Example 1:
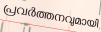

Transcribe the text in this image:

പ്രവർത്തനവുമായി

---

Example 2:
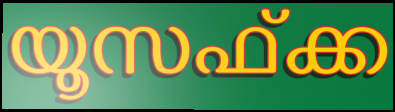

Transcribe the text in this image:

യൂസഫ്ക്ക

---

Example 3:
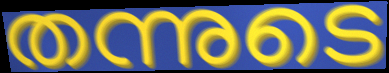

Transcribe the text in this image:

തന്നുടെ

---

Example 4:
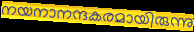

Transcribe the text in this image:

നയനാനന്ദകരമായിരുന്നു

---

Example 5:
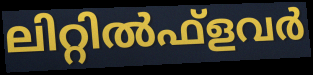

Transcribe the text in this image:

ലിറ്റിൽഫ്ളവർ